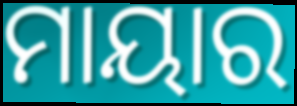
ମାୟାର